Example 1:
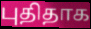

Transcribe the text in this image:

புதிதாக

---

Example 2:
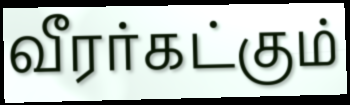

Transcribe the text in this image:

வீரர்கட்கும்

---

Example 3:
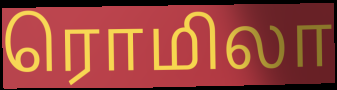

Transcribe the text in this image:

ரொமிலா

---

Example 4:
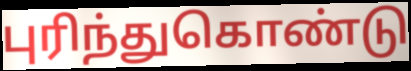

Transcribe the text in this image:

புரிந்துகொண்டு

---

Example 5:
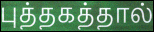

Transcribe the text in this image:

புத்தகத்தால்